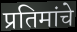
प्रतिमांचे